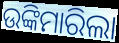
ଉଙ୍କିମାରିଲା